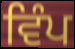
ਵਿੰਪ